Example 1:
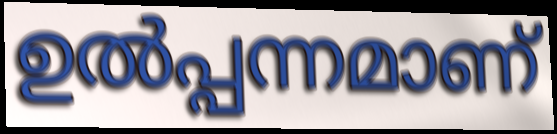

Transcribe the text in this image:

ഉൽപ്പന്നമാണ്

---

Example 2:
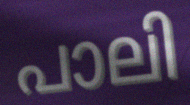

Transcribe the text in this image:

പാലി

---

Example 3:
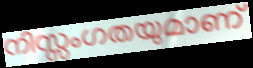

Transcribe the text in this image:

നിസ്സംഗതയുമാണ്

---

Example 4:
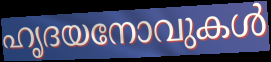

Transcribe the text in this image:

ഹൃദയനോവുകൾ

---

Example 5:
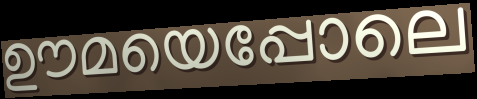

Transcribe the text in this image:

ഊമയെപ്പോലെ